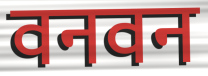
वनवन